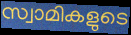
സ്വാമികളുടെ